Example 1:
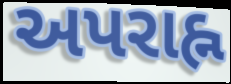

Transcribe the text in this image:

અપરાહ્ન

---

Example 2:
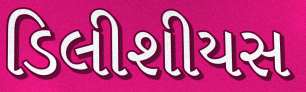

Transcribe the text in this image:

ડિલીશીયસ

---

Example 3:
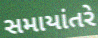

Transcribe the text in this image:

સમાયાંતરે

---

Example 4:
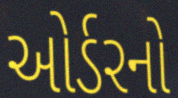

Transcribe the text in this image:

ઓર્ડરનો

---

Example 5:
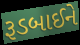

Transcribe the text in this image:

રૂડબાઈને